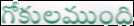
గోకులముంది